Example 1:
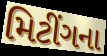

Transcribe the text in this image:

મિટીંગના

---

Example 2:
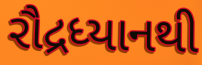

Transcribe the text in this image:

રૌદ્રધ્યાનથી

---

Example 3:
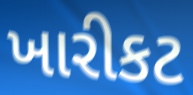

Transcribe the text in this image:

ખારીકટ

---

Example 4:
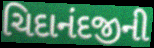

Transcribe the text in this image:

ચિદાનંદજીની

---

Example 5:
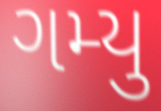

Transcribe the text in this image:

ગમ્યુ